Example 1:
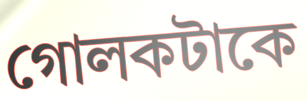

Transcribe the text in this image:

গোলকটাকে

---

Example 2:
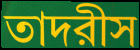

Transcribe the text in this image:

তাদরীস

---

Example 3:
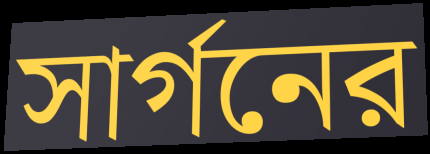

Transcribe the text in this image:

সার্গনের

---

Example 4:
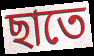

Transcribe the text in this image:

ছাতে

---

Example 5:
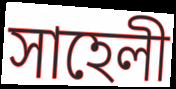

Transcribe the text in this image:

সাহেলী